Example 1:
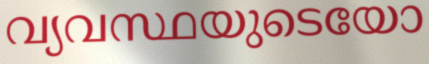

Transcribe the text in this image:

വ്യവസ്ഥയുടെയോ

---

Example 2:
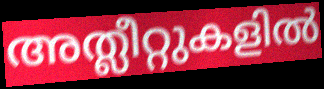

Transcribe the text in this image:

അത്ലീറ്റുകളിൽ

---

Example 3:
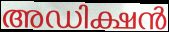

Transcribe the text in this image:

അഡിക്ഷൻ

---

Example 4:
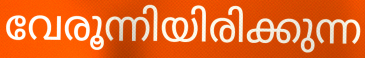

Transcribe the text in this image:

വേരൂന്നിയിരിക്കുന്ന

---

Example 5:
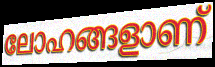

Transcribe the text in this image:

ലോഹങ്ങളാണ്